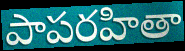
పాపరహితా